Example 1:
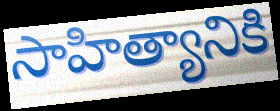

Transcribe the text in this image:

సాహిత్యానికి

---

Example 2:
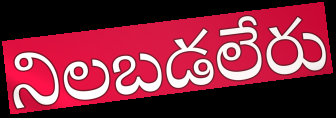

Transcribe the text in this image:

నిలబడలేరు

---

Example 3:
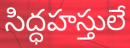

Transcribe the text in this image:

సిద్ధహస్తులే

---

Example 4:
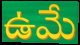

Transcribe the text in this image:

ఉమే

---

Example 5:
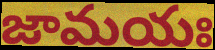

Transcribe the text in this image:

జామయః